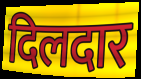
दिलदार